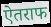
ऐतराफ